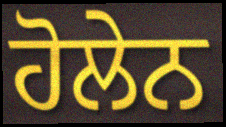
ਹੋਲੇਨ